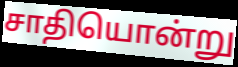
சாதியொன்று